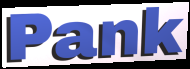
Pank